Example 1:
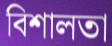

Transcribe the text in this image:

বিশালতা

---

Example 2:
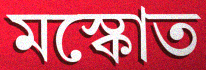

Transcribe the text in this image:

মস্কোত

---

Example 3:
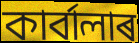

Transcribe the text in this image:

কাৰ্বালাৰ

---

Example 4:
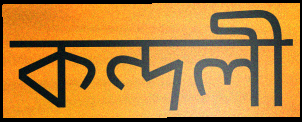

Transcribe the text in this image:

কন্দলী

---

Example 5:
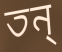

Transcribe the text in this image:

তন্